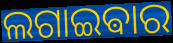
ଲଗାଇଵାର